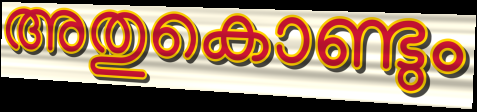
അതുകൊണ്ടും